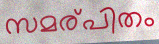
സമര്പിതം